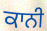
ਕਾਨੀ